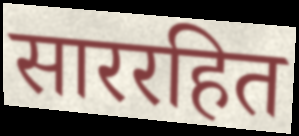
साररहित